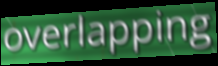
overlapping